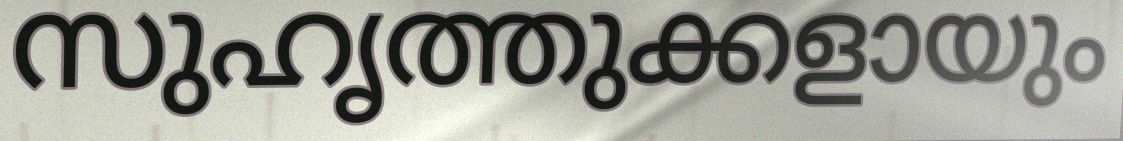
സുഹൃത്തുക്കളായും